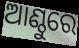
ଆଣ୍ଠୁରେ